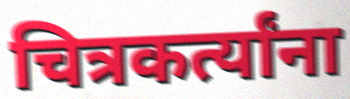
चित्रकर्त्यांना